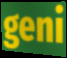
geni